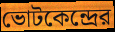
ভোটকেন্দ্রের